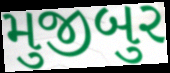
મુજીબુર